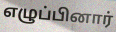
எழுப்பினார்